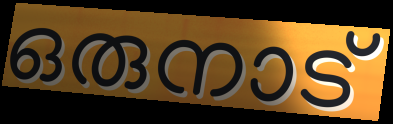
ഒരുനാട്